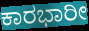
ಕಾರಭಾರೀ